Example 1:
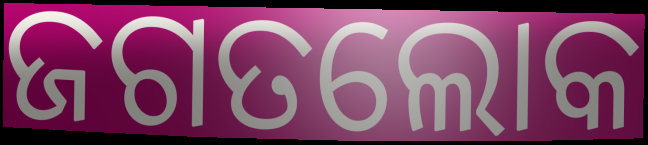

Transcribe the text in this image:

ଜଗତଲୋକ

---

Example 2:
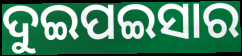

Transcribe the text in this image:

ଦୁଇପଇସାର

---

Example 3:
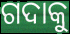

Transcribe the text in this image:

ଗଦାକୁ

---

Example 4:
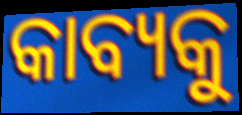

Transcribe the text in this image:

କାବ୍ୟକୁ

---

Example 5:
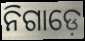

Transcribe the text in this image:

ନିଗାଡ଼େ